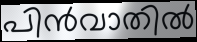
പിൻവാതിൽ